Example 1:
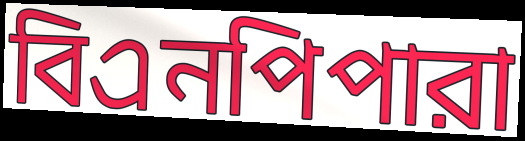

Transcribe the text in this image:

বিএনপিপারা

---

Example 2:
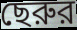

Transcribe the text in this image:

ছেরুর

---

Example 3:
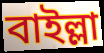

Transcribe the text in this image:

বাইল্লা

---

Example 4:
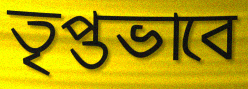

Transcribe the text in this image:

তৃপ্তভাবে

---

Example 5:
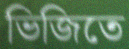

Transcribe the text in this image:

ভিজিতে